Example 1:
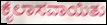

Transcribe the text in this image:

ಕೈಲಾಸವಾಯಿತು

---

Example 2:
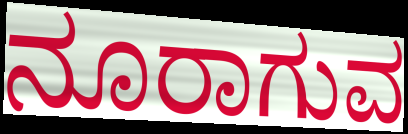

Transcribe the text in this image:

ನೂರಾಗುವ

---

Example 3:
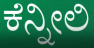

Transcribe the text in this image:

ಕೆನ್ನೀಲಿ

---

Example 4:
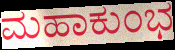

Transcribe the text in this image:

ಮಹಾಕುಂಭ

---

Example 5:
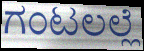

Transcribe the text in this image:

ಗಂಟಲಲ್ಲೆ